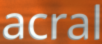
acral